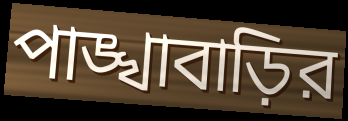
পাঙ্খাবাড়ির